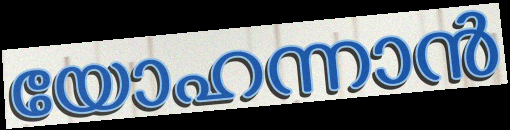
യോഹന്നാൻ